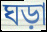
ঘড়া